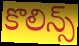
కొలిన్స్